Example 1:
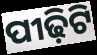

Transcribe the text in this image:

ପୀଢ଼ିଟି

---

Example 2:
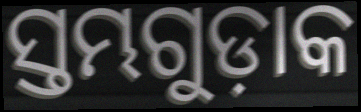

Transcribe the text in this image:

ସ୍ତମ୍ଭଗୁଡ଼ାକ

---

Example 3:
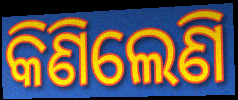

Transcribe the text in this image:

କିଣିଲେଣି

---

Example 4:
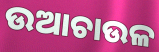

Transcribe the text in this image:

ଉଆଚାଉଳ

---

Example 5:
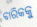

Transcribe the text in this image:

ବାରିକକୁ